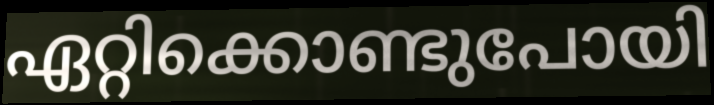
ഏറ്റിക്കൊണ്ടുപോയി